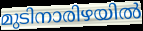
മുടിനാരിഴയിൽ